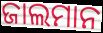
ଜାଲମାନ